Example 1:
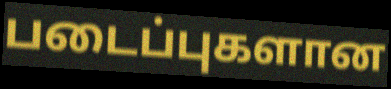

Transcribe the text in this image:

படைப்புகளான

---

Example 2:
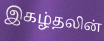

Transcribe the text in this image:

இகழ்தலின்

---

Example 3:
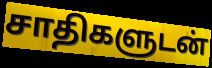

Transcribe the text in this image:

சாதிகளுடன்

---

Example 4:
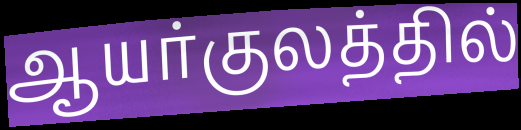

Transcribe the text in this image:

ஆயர்குலத்தில்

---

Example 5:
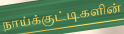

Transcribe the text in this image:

நாய்க்குட்டிகளின்